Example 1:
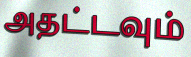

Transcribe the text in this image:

அதட்டவும்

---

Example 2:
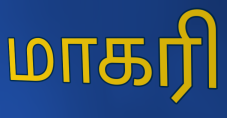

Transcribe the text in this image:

மாகரி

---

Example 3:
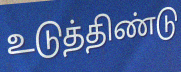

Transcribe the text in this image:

உடுத்திண்டு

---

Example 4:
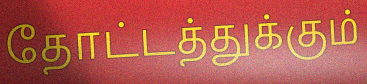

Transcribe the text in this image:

தோட்டத்துக்கும்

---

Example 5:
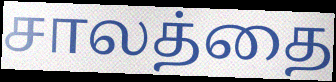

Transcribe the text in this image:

சாலத்தை